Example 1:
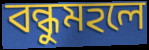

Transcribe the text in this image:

বন্ধুমহলে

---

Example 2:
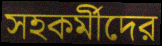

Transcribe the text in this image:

সহকর্মীদের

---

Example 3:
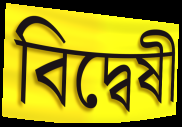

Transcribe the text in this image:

বিদ্বেষী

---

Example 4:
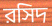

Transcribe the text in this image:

রসিদ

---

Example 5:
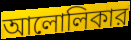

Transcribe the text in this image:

আলোলিকার